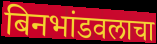
बिनभांडवलाचा